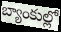
బ్యాంకుల్లో